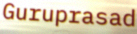
Guruprasad